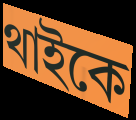
থাইকে